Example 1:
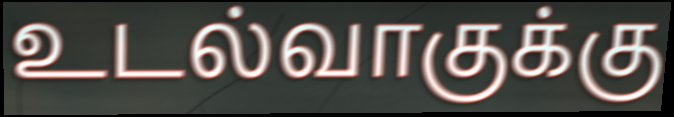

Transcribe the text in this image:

உடல்வாகுக்கு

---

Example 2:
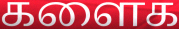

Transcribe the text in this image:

களைக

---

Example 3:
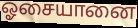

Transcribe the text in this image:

ஓசையானை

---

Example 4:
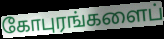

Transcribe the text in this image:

கோபுரங்களைப்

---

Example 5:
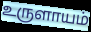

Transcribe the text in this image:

உருளாயம்